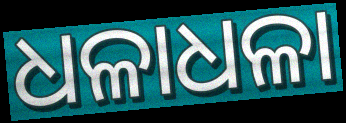
ଧଳାଧଳା